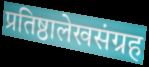
प्रतिष्ठालेखसंग्रह